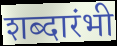
शब्दारंभी